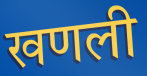
खणली